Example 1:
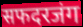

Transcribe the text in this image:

सफदरजंग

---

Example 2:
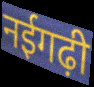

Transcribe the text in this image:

नईगढ़ी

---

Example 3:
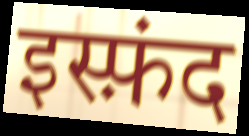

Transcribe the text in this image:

इस्फ़ंद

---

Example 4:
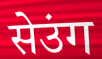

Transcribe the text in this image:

सेउंग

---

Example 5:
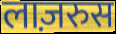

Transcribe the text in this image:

लाज़रुस